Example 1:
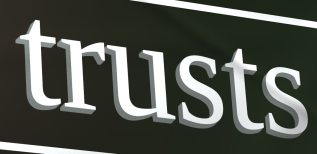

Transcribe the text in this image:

trusts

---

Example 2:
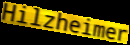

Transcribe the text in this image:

Hilzheimer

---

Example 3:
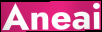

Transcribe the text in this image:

Aneai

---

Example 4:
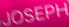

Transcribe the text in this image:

JOSEPH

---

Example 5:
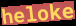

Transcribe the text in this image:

heloke